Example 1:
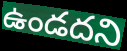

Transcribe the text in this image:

ఉండదని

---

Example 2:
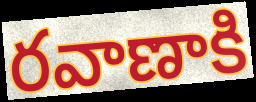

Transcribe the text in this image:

రవాణాకి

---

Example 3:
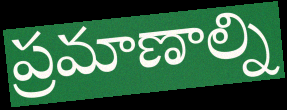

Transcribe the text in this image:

ప్రమాణాల్ని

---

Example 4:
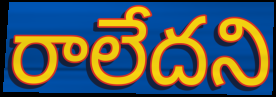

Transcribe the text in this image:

రాలేదని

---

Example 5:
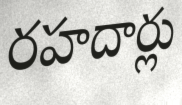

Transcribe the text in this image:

రహదార్లు